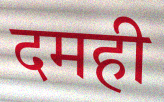
दमही